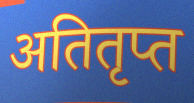
अतितृप्त